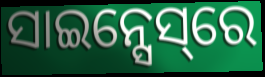
ସାଇନ୍ସେସ୍‌ରେ